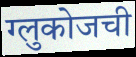
ग्लुकोजची